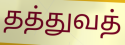
தத்துவத்